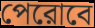
পেরোবে